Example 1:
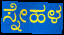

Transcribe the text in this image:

ಸ್ನೇಹಳ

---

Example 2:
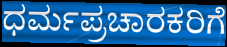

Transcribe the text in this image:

ಧರ್ಮಪ್ರಚಾರಕರಿಗೆ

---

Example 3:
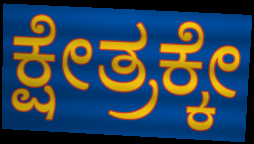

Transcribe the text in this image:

ಕ್ಷೇತ್ರಕ್ಕೇ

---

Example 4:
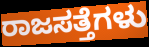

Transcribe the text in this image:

ರಾಜಸತ್ತೆಗಳು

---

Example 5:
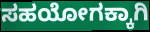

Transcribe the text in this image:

ಸಹಯೋಗಕ್ಕಾಗಿ